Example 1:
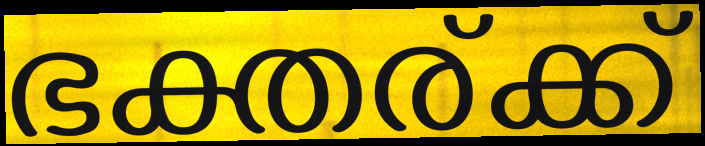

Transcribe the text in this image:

ഭക്തര്ക്ക്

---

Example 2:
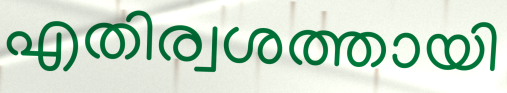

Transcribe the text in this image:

എതിര്വശത്തായി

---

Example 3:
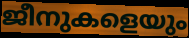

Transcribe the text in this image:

ജീനുകളെയും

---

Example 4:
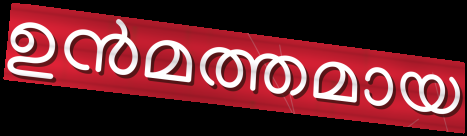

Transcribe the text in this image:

ഉൻമത്തമായ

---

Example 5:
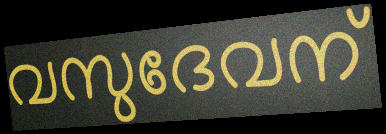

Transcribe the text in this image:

വസുദേവന്